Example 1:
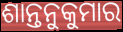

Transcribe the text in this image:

ଶାନ୍ତନୁକୁମାର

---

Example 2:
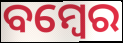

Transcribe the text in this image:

ବମ୍ବେର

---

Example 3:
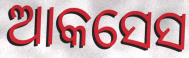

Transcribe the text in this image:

ଆକସେସ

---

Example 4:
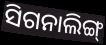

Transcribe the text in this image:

ସିଗନାଲିଙ୍ଗ୍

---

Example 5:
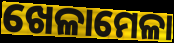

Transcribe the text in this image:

ଖେଳାମେଳା